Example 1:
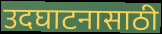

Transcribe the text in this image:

उदघाटनासाठी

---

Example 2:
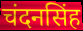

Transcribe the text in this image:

चंदनसिंह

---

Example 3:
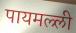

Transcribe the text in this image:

पायमल्ली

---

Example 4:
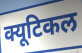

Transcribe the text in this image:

क्यूटिकल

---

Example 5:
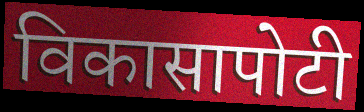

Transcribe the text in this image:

विकासापोटी